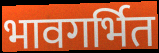
भावगर्भित